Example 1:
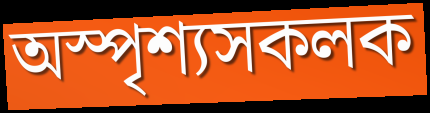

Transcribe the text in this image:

অস্পৃশ্যসকলক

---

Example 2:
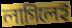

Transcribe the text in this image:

লাগিলেই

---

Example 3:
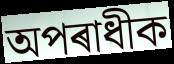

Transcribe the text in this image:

অপৰাধীক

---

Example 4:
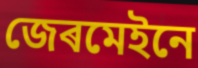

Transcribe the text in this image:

জেৰমেইনে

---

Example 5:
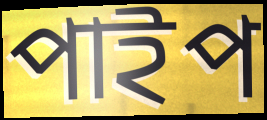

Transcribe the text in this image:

পাইপ